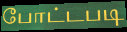
போட்டபடி